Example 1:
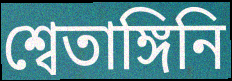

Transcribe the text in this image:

শ্বেতাঙ্গিনি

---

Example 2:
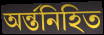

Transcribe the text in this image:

অর্ন্তনিহিত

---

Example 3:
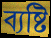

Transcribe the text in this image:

ব্যষ্টি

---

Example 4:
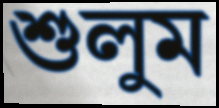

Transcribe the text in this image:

শুলুম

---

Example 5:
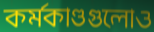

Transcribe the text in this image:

কর্মকাণ্ডগুলোও